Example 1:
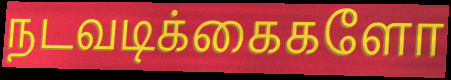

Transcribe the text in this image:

நடவடிக்கைகளோ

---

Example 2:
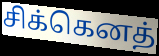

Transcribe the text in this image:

சிக்கெனத்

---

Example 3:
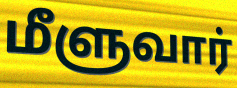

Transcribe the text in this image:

மீளுவார்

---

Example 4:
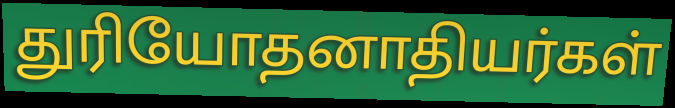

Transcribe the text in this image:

துரியோதனாதியர்கள்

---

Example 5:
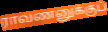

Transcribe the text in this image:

ராவணனுக்குப்